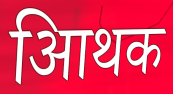
आिथक